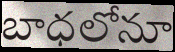
బాధలోనూ